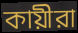
কায়ীরা